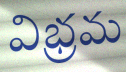
విభ్రమ